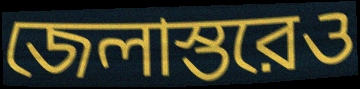
জেলাস্তরেও